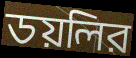
ডয়লির